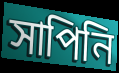
সাপিনি